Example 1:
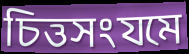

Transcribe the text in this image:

চিত্তসংযমে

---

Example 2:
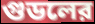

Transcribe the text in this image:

গুডলের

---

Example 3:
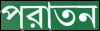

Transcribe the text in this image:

পরাতন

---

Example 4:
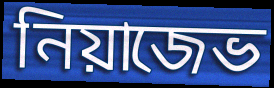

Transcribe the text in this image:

নিয়াজেভ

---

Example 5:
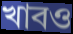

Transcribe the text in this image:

খাবও